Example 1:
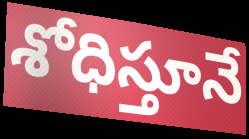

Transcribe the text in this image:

శోధిస్తూనే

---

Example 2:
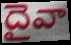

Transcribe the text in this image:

దైవా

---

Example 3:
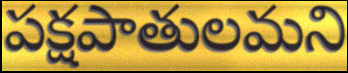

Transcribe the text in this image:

పక్షపాతులమని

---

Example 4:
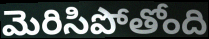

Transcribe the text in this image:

మెరిసిపోతోంది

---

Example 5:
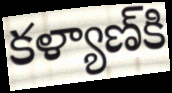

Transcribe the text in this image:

కళ్యాణ్‍కి